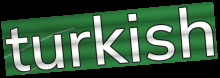
turkish